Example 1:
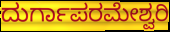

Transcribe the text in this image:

ದುರ್ಗಾಪರಮೇಶ್ವರಿ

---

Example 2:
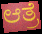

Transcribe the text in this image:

ಆತ್ರೆ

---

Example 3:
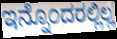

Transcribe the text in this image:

ಇನ್ನೊಂದರಲ್ಲಿಲ್ಲ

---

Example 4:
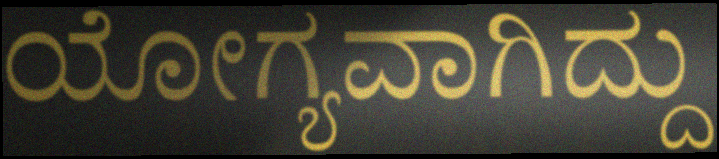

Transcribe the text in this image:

ಯೋಗ್ಯವಾಗಿದ್ದು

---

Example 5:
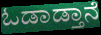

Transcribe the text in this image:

ಓಡಾಡ್ತಾನೆ